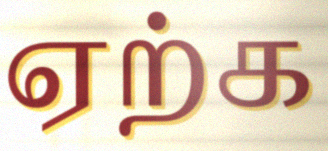
ஏற்க